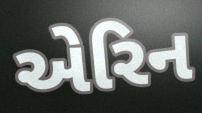
એરિન